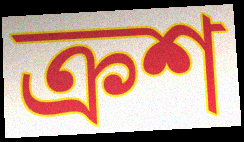
ক্রশ